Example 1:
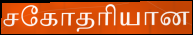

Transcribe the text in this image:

சகோதரியான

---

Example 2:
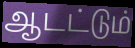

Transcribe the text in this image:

ஆடட்டும்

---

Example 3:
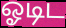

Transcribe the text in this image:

ஓடிட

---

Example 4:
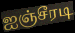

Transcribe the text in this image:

ஐஞ்சீரடி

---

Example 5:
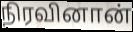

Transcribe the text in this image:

நிரவினான்